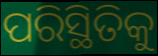
ପରିସ୍ଥିତିକୁ